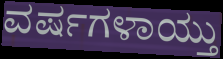
ವರ್ಷಗಳಾಯ್ತು